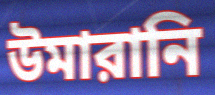
উমারানি